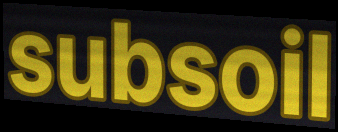
subsoil